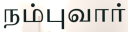
நம்புவார்